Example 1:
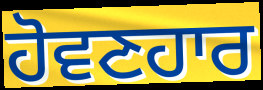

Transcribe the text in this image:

ਹੋਵਣਹਾਰ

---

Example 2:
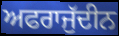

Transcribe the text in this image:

ਅਫਰਾਜੁੱਦੀਨ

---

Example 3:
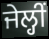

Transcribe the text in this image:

ਜੇਲ੍ਹੀਂ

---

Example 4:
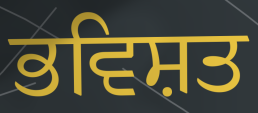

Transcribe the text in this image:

ਭਵਿਸ਼ਤ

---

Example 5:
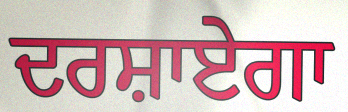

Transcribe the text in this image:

ਦਰਸ਼ਾਏਗਾ